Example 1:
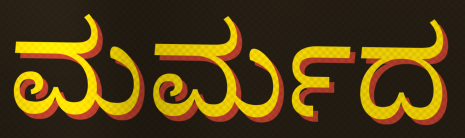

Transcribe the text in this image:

ಮರ್ಮದ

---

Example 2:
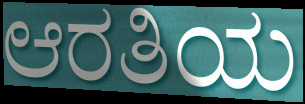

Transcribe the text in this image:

ಆರತಿಯ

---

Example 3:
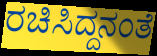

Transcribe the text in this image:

ರಚಿಸಿದ್ದನಂತೆ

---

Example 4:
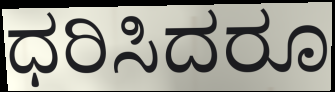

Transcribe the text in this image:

ಧರಿಸಿದರೂ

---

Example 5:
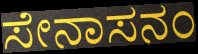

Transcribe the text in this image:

ಸೇನಾಸನಂ